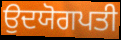
ਉਦਯੋਗਪਤੀ